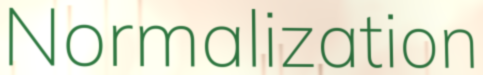
Normalization